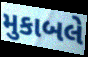
મુકાબલે